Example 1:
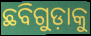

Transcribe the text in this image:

ଛବିଗୁଡ଼ାକୁ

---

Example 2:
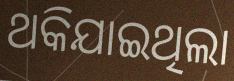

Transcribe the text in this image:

ଥକିଯାଇଥିଲା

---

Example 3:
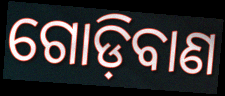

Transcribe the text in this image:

ଗୋଡ଼ିବାଣ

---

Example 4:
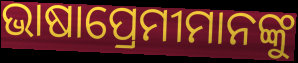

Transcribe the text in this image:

ଭାଷାପ୍ରେମୀମାନଙ୍କୁ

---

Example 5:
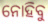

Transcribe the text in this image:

ନୋହିବୁ